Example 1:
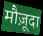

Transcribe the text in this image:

मौज़ूदा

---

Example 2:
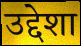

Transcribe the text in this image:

उद्देशा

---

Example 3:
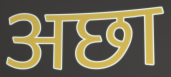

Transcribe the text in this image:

अछा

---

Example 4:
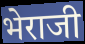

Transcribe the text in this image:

भेराजी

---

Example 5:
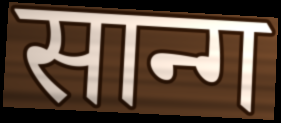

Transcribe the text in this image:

सान्ग